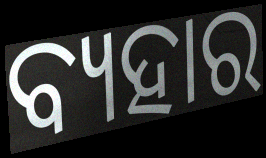
ବ୍ୟହାର